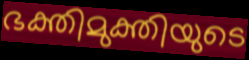
ഭക്തിമുക്തിയുടെ